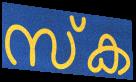
സ്ക